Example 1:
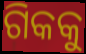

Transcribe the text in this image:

ଗିକକୁ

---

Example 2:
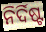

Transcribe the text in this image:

ନିର୍ଦିଷ୍ଟ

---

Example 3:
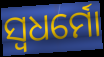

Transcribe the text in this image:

ସ୍ୱଧର୍ମୋ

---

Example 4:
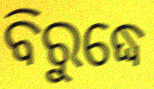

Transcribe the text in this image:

ବିରୁଦ୍ଧେ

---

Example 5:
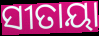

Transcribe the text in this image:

ସୀତାୟା